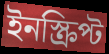
ইনস্ক্রিপ্ট